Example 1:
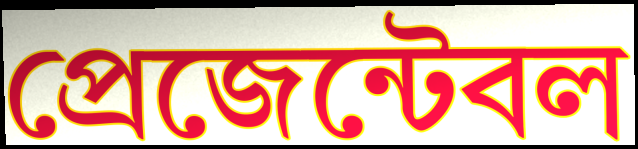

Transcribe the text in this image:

প্রেজেন্টেবল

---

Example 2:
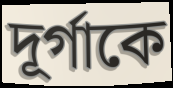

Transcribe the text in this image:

দূর্গাকে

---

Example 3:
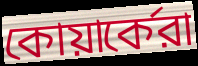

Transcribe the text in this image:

কোয়ার্কেরা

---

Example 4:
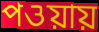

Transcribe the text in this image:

পওয়ায়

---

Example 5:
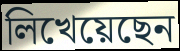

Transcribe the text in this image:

লিখেয়েছেন